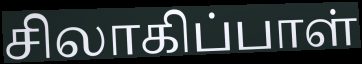
சிலாகிப்பாள்